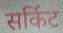
सर्किट